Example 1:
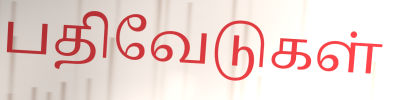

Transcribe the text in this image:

பதிவேடுகள்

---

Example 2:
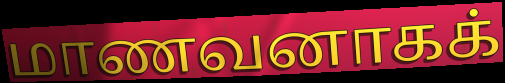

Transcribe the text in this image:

மாணவனாகக்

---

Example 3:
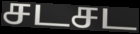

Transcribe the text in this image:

சடசட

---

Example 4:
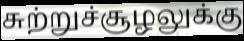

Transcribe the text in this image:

சுற்றுச்சூழலுக்கு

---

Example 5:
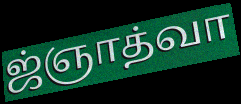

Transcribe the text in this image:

ஜ்ஞாத்வா